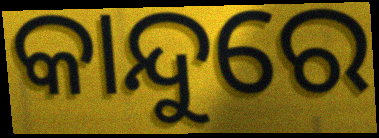
କାନ୍ଦୁରେ